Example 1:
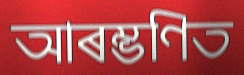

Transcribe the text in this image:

আৰম্ভণিত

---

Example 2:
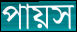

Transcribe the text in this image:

পায়স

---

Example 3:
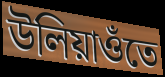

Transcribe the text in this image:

উলিয়াওঁতে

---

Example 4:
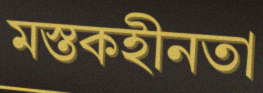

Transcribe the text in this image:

মস্তকহীনতা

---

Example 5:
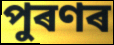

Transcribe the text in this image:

পুৰণৰ